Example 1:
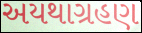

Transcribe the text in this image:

અયથાગ્રહણ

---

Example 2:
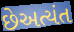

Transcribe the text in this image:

છેઅત્યંત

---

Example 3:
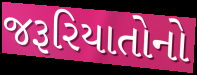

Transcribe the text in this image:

જરૂરિયાતોનો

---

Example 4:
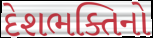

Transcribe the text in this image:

દેશભક્તિનો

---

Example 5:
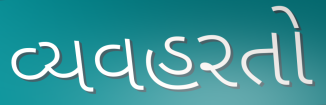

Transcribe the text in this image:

વ્યવહરતો